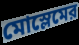
মোস্লেমের